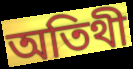
অতিথী